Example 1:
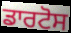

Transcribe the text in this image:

ਡਾਰਟੋਸ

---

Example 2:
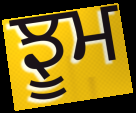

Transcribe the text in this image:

ਝੂਮ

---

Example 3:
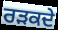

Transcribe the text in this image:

ਰੜਕਦੇ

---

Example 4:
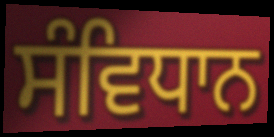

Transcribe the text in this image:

ਸੰਵਿਧਾਨ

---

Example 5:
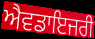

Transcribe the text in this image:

ਐਵਡਾਇਜਰੀ